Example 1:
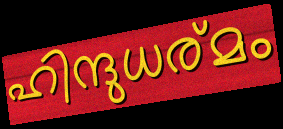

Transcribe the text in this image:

ഹിന്ദുധര്മം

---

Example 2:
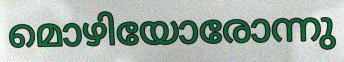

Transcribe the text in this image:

മൊഴിയോരോന്നു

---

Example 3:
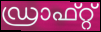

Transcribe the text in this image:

ഡ്രാഫ്റ്റ്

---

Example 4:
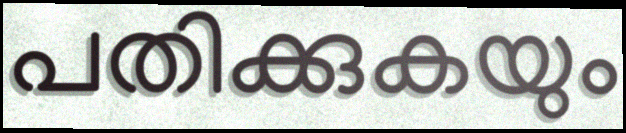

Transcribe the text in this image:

പതിക്കുകയും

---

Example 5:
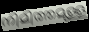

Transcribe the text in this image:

നിമിത്തമുള്ള